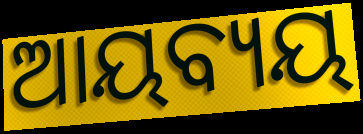
ଆୟବ୍ୟୟ